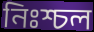
নিঃশ্চল